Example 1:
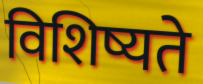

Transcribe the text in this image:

विशिष्यते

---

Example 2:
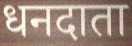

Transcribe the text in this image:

धनदाता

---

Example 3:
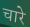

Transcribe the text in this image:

चारे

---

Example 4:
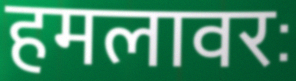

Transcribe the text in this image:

हमलावरः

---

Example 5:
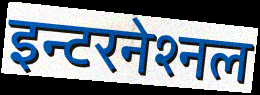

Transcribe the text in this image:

इन्टरनेश्नल